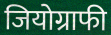
जियोग्राफी